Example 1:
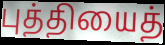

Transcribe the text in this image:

புத்தியைத்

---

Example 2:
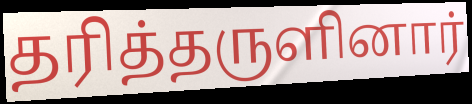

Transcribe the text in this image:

தரித்தருளினார்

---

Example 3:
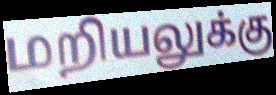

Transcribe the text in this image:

மறியலுக்கு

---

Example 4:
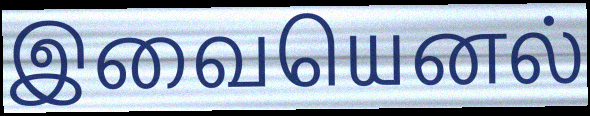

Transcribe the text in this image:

இவையெனல்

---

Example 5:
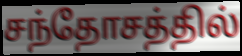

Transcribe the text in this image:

சந்தோசத்தில்